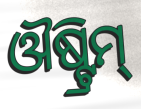
ଔଷ୍ଟ୍ରିମ୍